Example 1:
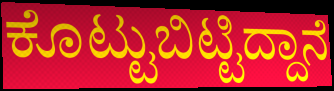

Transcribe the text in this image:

ಕೊಟ್ಟುಬಿಟ್ಟಿದ್ದಾನೆ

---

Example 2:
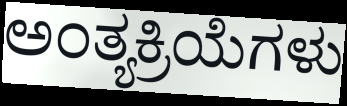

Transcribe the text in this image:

ಅಂತ್ಯಕ್ರಿಯೆಗಳು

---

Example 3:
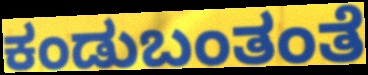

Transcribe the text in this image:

ಕಂಡುಬಂತಂತೆ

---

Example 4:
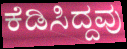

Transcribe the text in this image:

ಕೆಡಿಸಿದ್ದವು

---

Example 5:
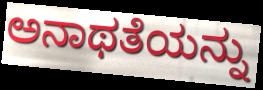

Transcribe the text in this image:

ಅನಾಥತೆಯನ್ನು